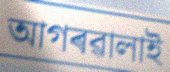
আগৰৱালাই